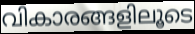
വികാരങ്ങളിലൂടെ